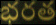
భరత